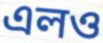
এলও